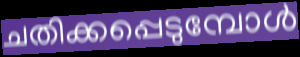
ചതിക്കപ്പെടുമ്പോൾ